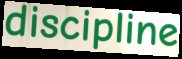
discipline